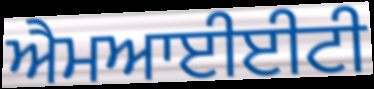
ਐਮਆਈਈਟੀ